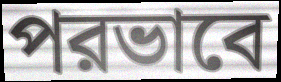
পরভাবে